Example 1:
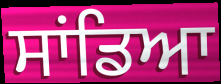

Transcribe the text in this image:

ਸਾਂਡਿਆ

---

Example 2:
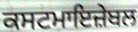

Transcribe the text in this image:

ਕਸਟਮਾਇਜ਼ੇਬਲ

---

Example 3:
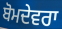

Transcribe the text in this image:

ਬੋਮਦੇਵਰਾ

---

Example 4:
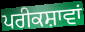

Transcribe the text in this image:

ਪਰੀਕਸ਼ਾਵਾਂ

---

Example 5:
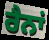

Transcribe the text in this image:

ਰੈਨਾਂ